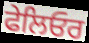
ਫੇਲਿਓਰ